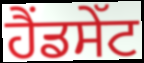
ਹੈਂਡਸੇੱਟ